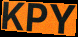
KPY